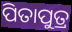
ପିତାପୁତ୍ର